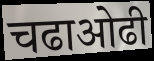
चढाओढी